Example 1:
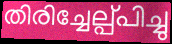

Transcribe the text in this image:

തിരിച്ചേല്പ്പിച്ചു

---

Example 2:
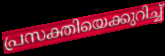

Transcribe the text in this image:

പ്രസക്തിയെക്കുറിച്ച്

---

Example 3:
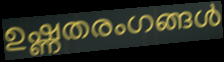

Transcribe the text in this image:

ഉഷ്ണതരംഗങ്ങൾ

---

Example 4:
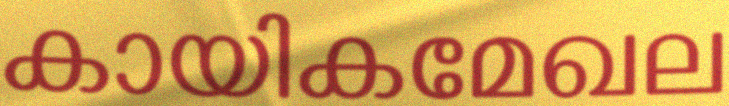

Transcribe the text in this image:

കായികമേഖല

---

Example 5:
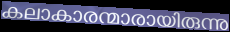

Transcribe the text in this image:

കലാകാരന്മാരായിരുന്നു